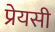
प्रेयसी